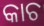
କାଚ